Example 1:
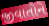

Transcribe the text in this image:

જીવાતોને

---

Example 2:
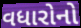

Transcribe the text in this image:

વધારોનો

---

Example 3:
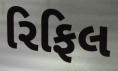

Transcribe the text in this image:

રિફિલ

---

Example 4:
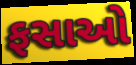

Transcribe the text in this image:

ફસાઓ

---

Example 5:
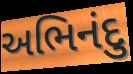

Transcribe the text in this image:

અભિનંદુ